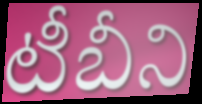
టీబీని